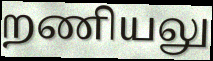
றணியலு